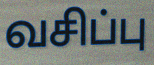
வசிப்பு